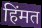
हिंमत